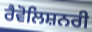
ਰੈਵੋਲਿਸ਼ਨਰੀ